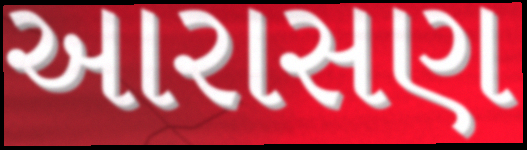
આરાસણ